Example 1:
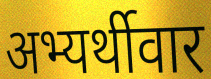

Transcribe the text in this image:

अभ्यर्थीवार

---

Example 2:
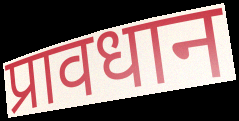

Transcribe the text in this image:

प्रावधान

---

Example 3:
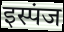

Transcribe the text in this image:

इस्पंज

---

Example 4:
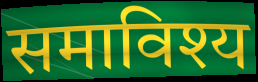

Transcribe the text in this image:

समाविश्य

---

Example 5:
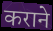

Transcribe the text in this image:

कराने